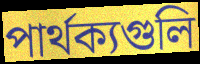
পার্থক্যগুলি